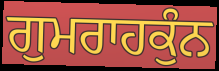
ਗੁਮਰਾਹਕੁੰਨ